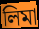
লিমা